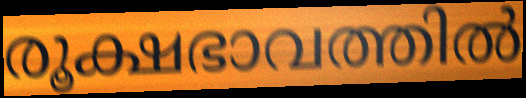
രൂക്ഷഭാവത്തിൽ